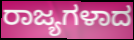
ರಾಜ್ಯಗಳಾದ